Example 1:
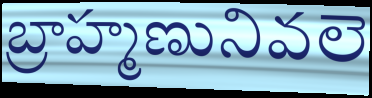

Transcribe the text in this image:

బ్రాహ్మణునివలె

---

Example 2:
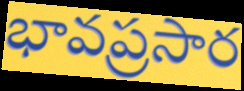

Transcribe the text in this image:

భావప్రసార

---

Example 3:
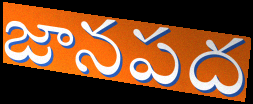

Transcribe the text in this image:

జానపద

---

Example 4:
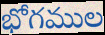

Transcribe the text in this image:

భోగముల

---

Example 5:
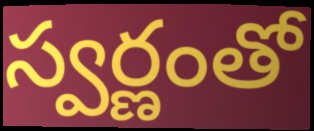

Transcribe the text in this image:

స్వర్ణంతో